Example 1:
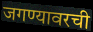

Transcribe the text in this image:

जगण्यावरची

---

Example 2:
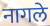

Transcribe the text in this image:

नागले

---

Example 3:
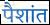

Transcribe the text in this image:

पैशांत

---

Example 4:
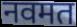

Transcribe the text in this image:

नवमत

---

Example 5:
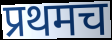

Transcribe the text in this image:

प्रथमच